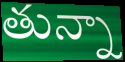
తున్నా